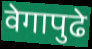
वेगापुढे